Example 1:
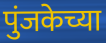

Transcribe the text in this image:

पुंजकेच्या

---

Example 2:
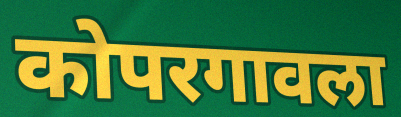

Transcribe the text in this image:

कोपरगावला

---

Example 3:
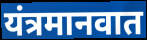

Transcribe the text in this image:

यंत्रमानवात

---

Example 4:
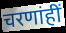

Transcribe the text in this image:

चरणांहीं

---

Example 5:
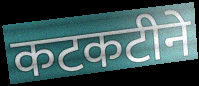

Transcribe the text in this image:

कटकटीने